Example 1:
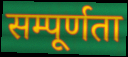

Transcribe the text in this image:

सम्पूर्णता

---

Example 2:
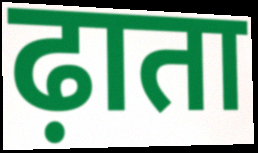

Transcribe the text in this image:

ढ़ाता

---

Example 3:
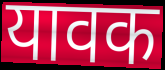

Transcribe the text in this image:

यावक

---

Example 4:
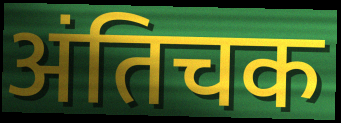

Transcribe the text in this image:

अंतिचक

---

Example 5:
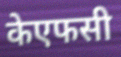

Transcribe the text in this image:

केएफसी